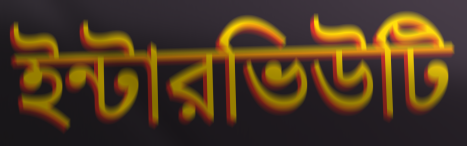
ইন্টারভিউটি